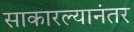
साकारल्यानंतर